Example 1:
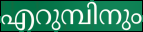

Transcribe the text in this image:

എറുമ്പിനും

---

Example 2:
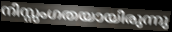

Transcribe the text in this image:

നിസ്സംഗതയായിരുന്നു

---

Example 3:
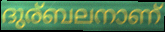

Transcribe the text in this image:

ദുര്ബലനാണ്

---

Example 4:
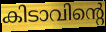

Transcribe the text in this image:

കിടാവിന്റെ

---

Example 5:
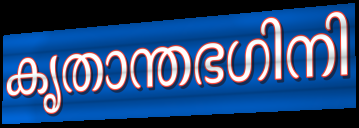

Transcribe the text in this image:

കൃതാന്തഭഗിനി